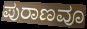
ಪುರಾಣವೂ